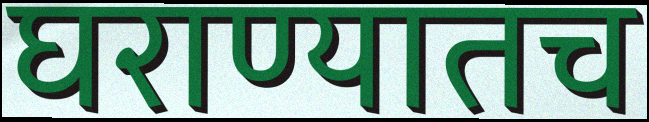
घराण्यातच